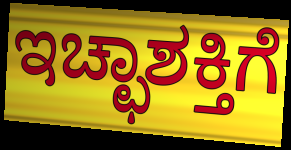
ಇಚ್ಛಾಶಕ್ತಿಗೆ